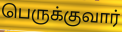
பெருக்குவார்